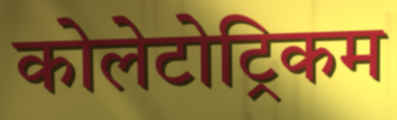
कोलेटोट्रिकम